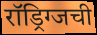
रॉड्रिग्जची